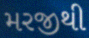
મરજીથી